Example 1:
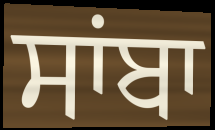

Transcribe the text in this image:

ਸਾਂਬਾ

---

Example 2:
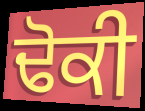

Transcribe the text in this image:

ਢੋਕੀ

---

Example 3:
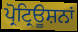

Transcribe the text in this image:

ਪ੍ਰੋਟ੍ਰਿਊਸ਼ਨਾਂ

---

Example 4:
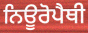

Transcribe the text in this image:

ਨਿਊਰੋਪੈਥੀ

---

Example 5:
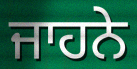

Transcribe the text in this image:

ਜਾਹਨੇ